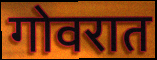
गोवरात